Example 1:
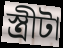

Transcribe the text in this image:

স্ত্রীটা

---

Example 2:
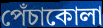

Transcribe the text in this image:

পেঁচাকোলা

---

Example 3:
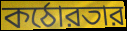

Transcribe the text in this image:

কঠোরতার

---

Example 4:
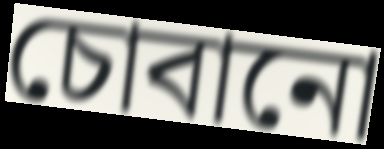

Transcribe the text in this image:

চোবানো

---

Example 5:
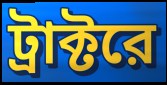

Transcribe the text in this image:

ট্রাক্টরে